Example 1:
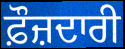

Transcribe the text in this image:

ਫ਼ੌਜ਼ਦਾਰੀ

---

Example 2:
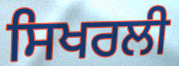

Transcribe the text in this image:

ਸਿਖਰਲੀ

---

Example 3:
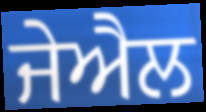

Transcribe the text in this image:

ਜੇਐਲ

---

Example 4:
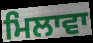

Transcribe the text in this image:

ਮਿਲਾਵਾ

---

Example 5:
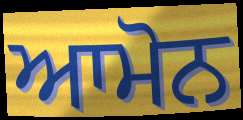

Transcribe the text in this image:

ਆਮੋਨ